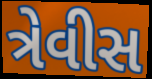
ત્રેવીસ